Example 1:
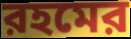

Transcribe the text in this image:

রহমের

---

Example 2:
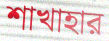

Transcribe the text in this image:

শাখাহার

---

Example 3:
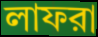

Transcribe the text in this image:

লাফরা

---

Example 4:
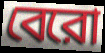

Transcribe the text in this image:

বেরো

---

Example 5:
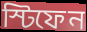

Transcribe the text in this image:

স্টিফেন